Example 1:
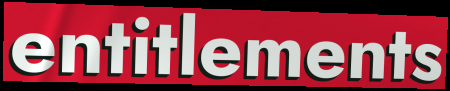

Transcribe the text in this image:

entitlements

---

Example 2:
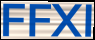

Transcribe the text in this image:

FFXI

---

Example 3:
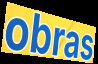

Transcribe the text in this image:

obras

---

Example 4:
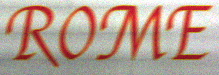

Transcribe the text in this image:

ROME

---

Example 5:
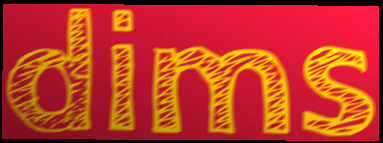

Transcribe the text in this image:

dims